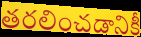
తరలించడానికీ